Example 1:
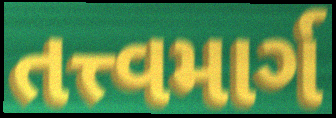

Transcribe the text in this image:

તત્ત્વમાર્ગ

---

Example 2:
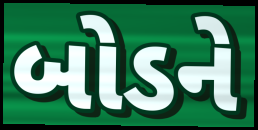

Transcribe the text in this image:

બોડને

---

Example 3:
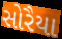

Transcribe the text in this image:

સોરૈયા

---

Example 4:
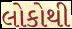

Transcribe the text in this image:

લોકોથી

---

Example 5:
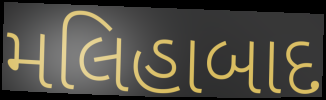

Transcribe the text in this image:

મલિહાબાદ